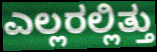
ಎಲ್ಲರಲ್ಲಿತ್ತು